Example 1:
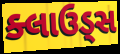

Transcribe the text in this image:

ક્લાઉડ્સ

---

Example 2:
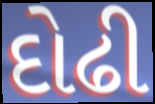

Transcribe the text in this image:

દોઢી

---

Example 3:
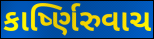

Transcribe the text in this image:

કાર્ષ્ણિરુવાચ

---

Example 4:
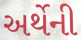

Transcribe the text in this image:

અર્થેની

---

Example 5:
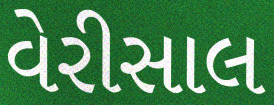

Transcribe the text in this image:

વેરીસાલ